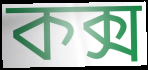
কক্স